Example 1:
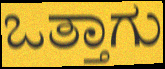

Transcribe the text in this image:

ಒತ್ತಾಗು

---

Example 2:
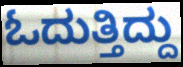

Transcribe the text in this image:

ಓದುತ್ತಿದ್ದು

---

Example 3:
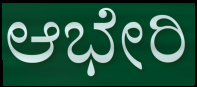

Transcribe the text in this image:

ಆಭೇರಿ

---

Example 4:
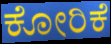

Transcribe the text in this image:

ಕೋರಿಕೆ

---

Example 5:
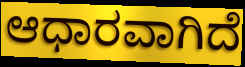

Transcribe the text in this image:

ಆಧಾರವಾಗಿದೆ